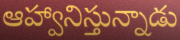
ఆహ్వానిస్తున్నాడు